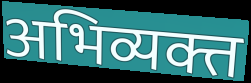
अभिव्यक्त